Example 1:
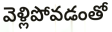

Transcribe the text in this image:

వెళ్లిపోవడంతో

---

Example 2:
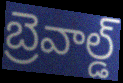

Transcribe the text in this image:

బ్రెవాల్డ్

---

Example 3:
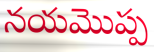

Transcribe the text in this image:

నయమొప్ప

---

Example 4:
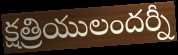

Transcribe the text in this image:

క్షత్రియులందర్నీ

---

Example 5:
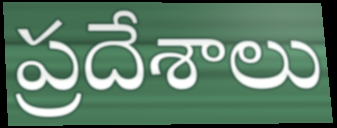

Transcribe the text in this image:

ప్రదేశాలు